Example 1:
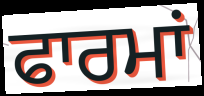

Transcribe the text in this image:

ਫਾਰਮਾਂ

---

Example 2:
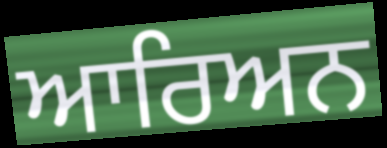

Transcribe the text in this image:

ਆਰਿਅਨ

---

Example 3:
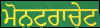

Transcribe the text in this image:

ਮੋਨਟਰਾਚੇਟ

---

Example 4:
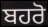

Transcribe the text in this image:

ਬਹਰੋ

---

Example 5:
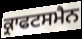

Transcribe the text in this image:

ਕ੍ਰਾਫਟਸਮੈਨ